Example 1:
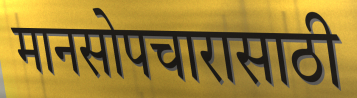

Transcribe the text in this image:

मानसोपचारासाठी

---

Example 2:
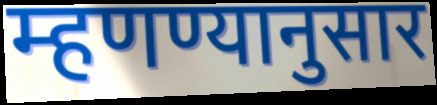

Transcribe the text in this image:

म्हणण्यानुसार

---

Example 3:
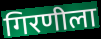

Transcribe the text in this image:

गिरणीला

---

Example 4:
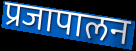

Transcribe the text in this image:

प्रजापालन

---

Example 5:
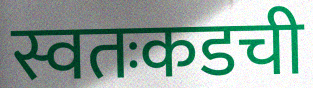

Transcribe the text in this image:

स्वतःकडची